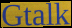
Gtalk